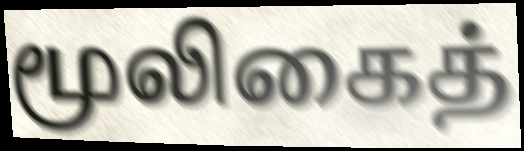
மூலிகைத்